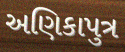
અણિકાપુત્ર